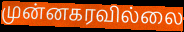
முன்னகரவில்லை